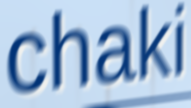
chaki